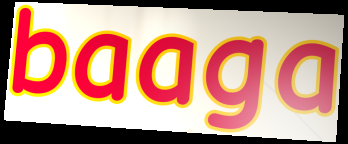
baaga